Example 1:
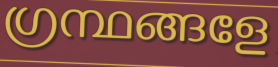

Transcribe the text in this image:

ഗ്രന്ഥങ്ങളേ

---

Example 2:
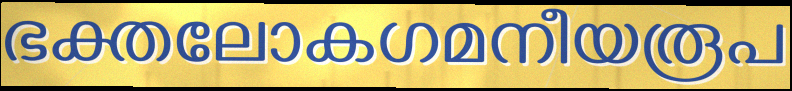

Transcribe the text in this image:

ഭക്തലോകഗമനീയരൂപ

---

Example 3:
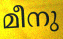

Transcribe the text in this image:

മീനു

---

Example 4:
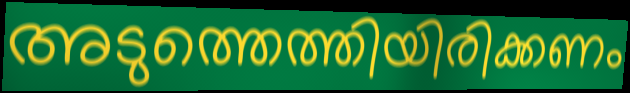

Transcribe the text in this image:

അടുത്തെത്തിയിരിക്കണം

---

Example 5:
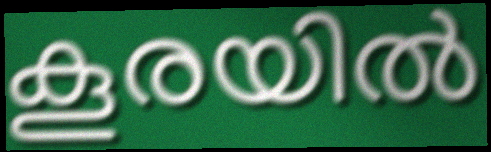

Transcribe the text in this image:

കൂരയിൽ